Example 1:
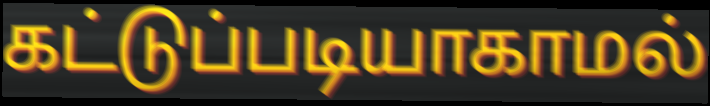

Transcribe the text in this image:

கட்டுப்படியாகாமல்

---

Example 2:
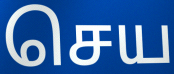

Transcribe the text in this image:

செய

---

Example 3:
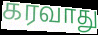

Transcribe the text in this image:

கரவாது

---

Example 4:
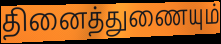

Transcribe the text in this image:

தினைத்துணையும்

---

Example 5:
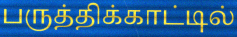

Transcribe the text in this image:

பருத்திக்காட்டில்